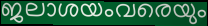
ജലാശയംവരെയും